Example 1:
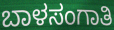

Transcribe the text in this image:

ಬಾಳಸಂಗಾತಿ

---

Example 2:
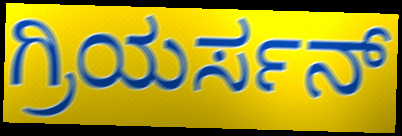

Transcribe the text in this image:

ಗ್ರಿಯರ್ಸನ್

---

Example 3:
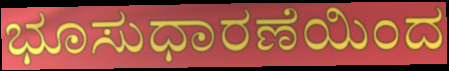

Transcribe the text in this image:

ಭೂಸುಧಾರಣೆಯಿಂದ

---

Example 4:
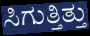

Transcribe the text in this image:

ಸಿಗುತ್ತಿತ್ತು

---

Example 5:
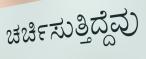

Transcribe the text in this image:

ಚರ್ಚಿಸುತ್ತಿದ್ದೆವು